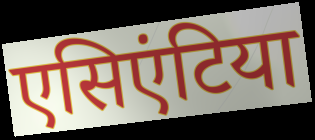
एसिएंटिया